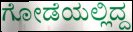
ಗೋಡೆಯಲ್ಲಿದ್ದ